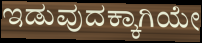
ಇಡುವುದಕ್ಕಾಗಿಯೇ